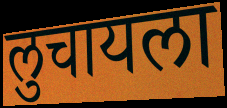
लुचायला